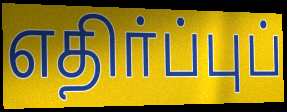
எதிர்ப்புப்